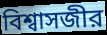
বিশ্বাসজীর